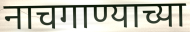
नाचगाण्याच्या